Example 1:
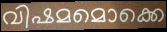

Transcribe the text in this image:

വിഷമമൊക്കെ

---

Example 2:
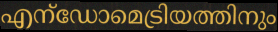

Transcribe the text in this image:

എന്ഡോമെട്രിയത്തിനും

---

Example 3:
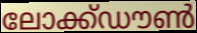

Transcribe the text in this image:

ലോക്ക്ഡൗൺ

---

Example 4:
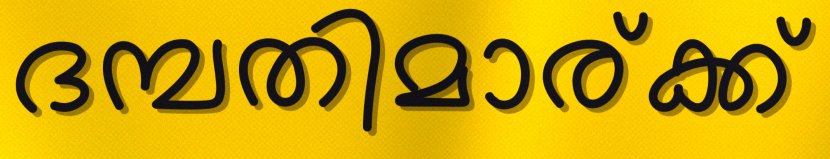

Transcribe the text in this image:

ദമ്പതിമാര്ക്ക്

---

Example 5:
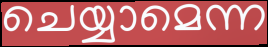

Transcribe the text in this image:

ചെയ്യാമെന്ന